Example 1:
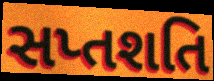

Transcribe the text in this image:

સપ્તશતિ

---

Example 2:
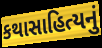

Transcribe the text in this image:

કથાસાહિત્યનું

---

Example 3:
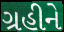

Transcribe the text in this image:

ગ્રહીને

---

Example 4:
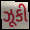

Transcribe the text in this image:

ઝૂકી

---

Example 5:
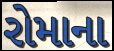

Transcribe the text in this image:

રોમાના